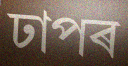
ঢাপৰ